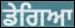
ਡੇਗਿਆ